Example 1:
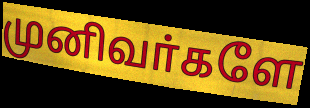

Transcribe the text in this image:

முனிவர்களே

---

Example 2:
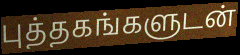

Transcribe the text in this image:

புத்தகங்களுடன்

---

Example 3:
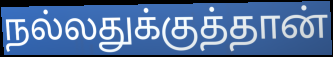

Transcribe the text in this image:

நல்லதுக்குத்தான்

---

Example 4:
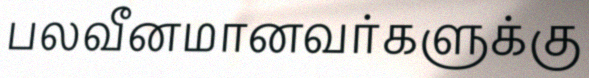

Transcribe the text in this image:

பலவீனமானவர்களுக்கு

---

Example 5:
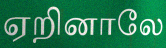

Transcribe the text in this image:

ஏறினாலே